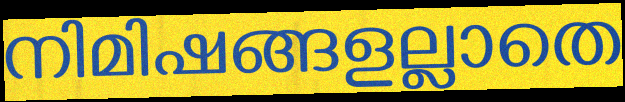
നിമിഷങ്ങളല്ലാതെ